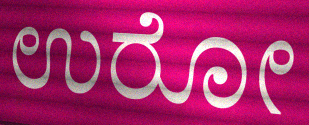
ಉರೋ